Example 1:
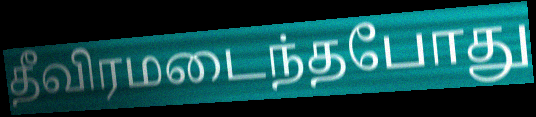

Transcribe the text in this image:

தீவிரமடைந்தபோது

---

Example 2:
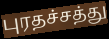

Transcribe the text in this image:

புரதச்சத்து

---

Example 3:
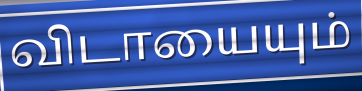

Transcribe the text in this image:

விடாயையும்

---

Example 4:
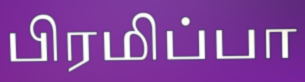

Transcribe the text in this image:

பிரமிப்பா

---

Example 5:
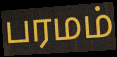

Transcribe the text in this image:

பரமம்